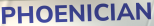
PHOENICIAN